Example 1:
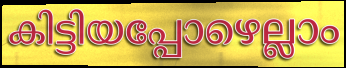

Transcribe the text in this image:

കിട്ടിയപ്പോഴെല്ലാം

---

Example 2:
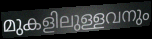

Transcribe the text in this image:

മുകളിലുള്ളവനും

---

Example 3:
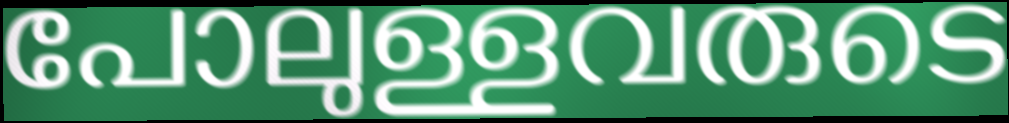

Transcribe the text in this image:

പോലുള്ളവരുടെ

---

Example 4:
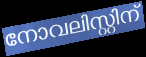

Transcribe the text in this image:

നോവലിസ്റ്റിന്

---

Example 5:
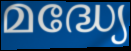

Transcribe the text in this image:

മദ്ധ്യേ